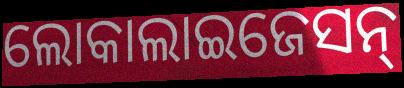
ଲୋକାଲାଇଜେସନ୍